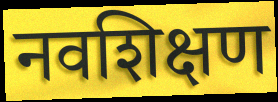
नवशिक्षण